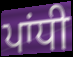
ਪਾਂਧੀ